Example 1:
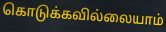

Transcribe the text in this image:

கொடுக்கவில்லையாம்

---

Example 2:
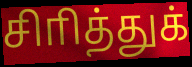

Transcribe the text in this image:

சிரித்துக்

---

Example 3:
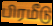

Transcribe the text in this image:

பிரமீடு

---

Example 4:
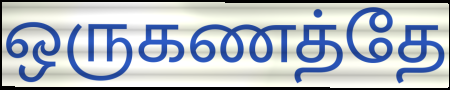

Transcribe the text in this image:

ஒருகணத்தே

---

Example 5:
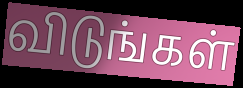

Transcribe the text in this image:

விடுங்கள்